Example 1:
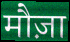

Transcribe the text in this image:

मौज़ा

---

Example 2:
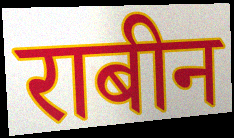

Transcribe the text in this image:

राबीन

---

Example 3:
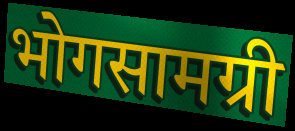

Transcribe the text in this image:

भोगसामग्री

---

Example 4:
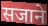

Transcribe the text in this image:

सजाने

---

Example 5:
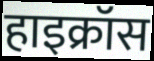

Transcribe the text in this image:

हाइक्रॉस